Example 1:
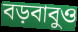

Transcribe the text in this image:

বড়বাবুও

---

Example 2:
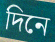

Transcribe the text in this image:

দিনে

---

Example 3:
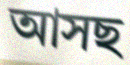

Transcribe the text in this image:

আসছ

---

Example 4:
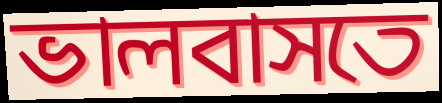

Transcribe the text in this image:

ভালবাসতে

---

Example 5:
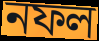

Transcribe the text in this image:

নফল